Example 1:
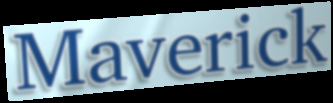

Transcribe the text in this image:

Maverick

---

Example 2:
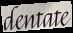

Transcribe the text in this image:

dentate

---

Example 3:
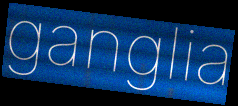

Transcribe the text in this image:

ganglia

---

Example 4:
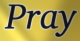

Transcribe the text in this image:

Pray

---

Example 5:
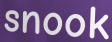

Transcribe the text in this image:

snook